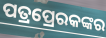
ପତ୍ରପ୍ରେରକଙ୍କର